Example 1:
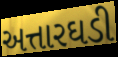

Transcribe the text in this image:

અત્તારઘડી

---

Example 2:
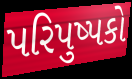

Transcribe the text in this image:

પરિપુષ્પકો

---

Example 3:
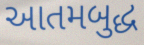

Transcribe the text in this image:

આતમબુદ્ધ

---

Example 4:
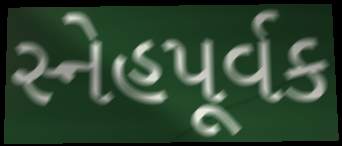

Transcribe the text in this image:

સ્નેહપૂર્વક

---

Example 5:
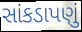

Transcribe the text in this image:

સાંકડાપણું